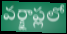
వర్క్షాప్లలో